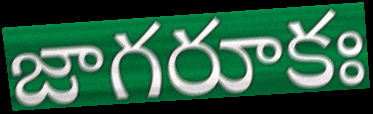
జాగరూకః